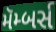
મૅમ્બર્સ